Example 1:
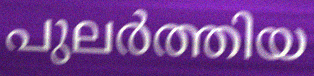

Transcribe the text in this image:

പുലർത്തിയ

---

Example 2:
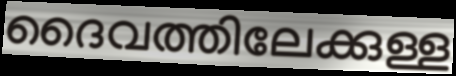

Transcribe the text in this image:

ദൈവത്തിലേക്കുള്ള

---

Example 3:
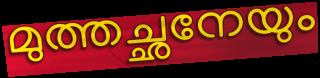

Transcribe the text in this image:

മുത്തച്ഛനേയും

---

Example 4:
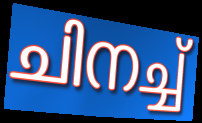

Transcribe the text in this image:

ചിനച്ച്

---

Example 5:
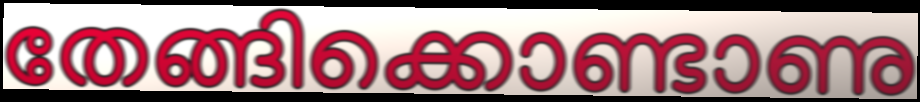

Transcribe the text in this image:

തേങ്ങിക്കൊണ്ടാണു